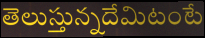
తెలుస్తున్నదేమిటంటే